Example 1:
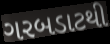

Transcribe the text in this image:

ગરબડાટથી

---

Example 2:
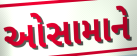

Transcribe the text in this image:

ઓસામાને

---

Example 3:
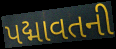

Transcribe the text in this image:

પદ્માવતની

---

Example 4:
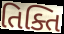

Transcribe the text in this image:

તિક્તિ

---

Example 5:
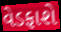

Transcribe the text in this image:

વેડફાશે